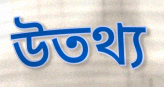
উতথ্য